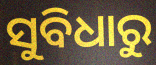
ସୁବିଧାରୁ